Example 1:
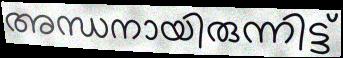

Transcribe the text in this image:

അന്ധനായിരുന്നിട്ട്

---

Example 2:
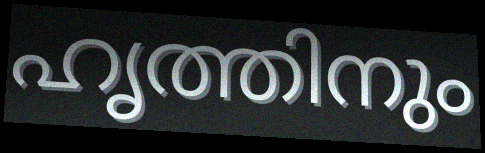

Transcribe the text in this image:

ഹൃത്തിനും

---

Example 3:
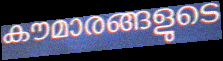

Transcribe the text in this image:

കൗമാരങ്ങളുടെ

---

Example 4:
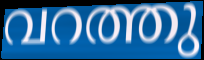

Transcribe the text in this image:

വറത്തു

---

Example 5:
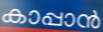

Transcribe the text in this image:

കാപ്പാൻ